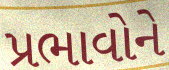
પ્રભાવોને